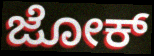
ಜೋಕ್